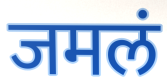
जमलं